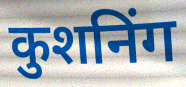
कुशनिंग